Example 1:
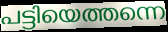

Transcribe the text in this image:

പട്ടിയെത്തന്നെ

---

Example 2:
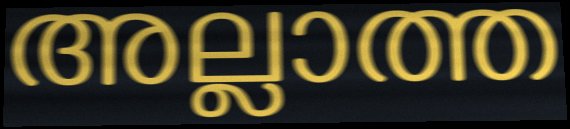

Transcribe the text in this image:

അല്ലാത്ത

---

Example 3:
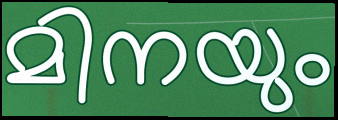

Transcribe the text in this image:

മിനയും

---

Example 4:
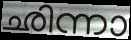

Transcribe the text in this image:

ഛിന്നാ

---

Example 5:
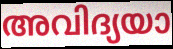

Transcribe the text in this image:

അവിദ്യയാ